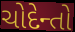
ચોદેન્તો